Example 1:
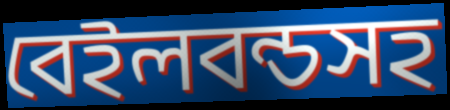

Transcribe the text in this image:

বেইলবন্ডসহ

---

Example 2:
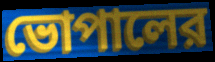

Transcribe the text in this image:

ভোপালের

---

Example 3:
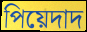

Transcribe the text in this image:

পিয়েদাদ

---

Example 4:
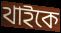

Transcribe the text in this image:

থাইকে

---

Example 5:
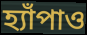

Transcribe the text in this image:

হ্যাঁপাও